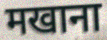
मखाना